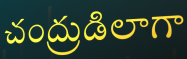
చంద్రుడిలాగా